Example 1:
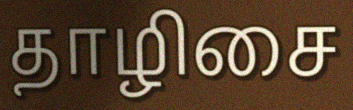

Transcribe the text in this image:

தாழிசை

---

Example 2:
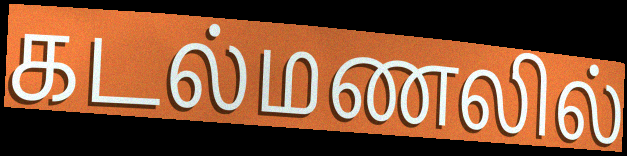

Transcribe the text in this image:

கடல்மணலில்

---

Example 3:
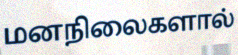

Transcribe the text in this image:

மனநிலைகளால்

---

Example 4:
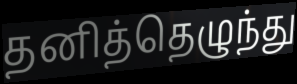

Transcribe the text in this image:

தனித்தெழுந்து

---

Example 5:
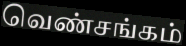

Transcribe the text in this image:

வெண்சங்கம்